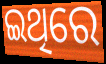
ଇଥିରେ